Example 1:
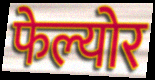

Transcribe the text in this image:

फेल्योर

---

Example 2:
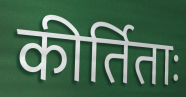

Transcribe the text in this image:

कीर्तिताः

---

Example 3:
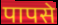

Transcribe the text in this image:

पापसे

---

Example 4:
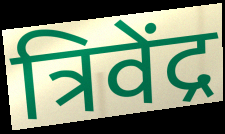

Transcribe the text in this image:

त्रिवेंद्र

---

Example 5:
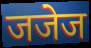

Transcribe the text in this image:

जजेज